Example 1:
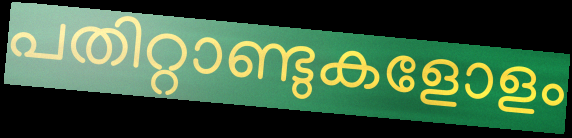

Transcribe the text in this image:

പതിറ്റാണ്ടുകളോളം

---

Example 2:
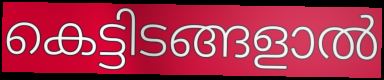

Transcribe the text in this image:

കെട്ടിടങ്ങളാൽ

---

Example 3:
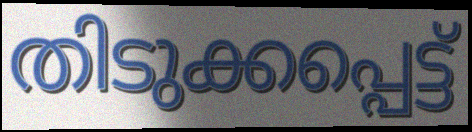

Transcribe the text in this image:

തിടുക്കപ്പെട്ട്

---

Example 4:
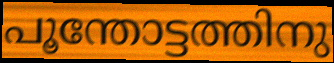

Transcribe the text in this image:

പൂന്തോട്ടത്തിനു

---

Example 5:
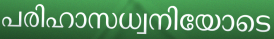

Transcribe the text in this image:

പരിഹാസധ്വനിയോടെ